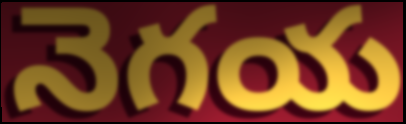
నెగయ